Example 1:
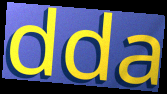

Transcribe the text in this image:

dda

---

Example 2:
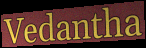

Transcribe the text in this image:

Vedantha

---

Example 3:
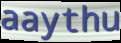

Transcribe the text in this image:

aaythu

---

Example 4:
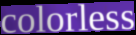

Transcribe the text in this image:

colorless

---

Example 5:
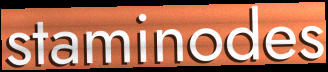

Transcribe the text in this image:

staminodes